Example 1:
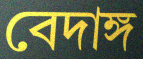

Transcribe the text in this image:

বেদাঙ্গ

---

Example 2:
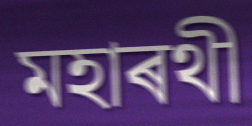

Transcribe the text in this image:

মহাৰথী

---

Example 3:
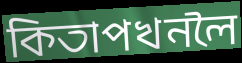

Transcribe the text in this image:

কিতাপখনলৈ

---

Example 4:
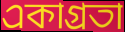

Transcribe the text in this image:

একাগ্ৰতা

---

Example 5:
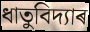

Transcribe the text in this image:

ধাতুবিদ্যাৰ